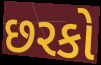
છરકો